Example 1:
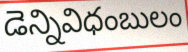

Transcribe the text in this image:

డెన్నివిధంబులం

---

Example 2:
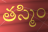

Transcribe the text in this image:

తస్మిం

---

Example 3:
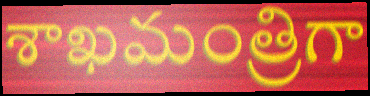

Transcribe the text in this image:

శాఖమంత్రిగా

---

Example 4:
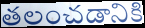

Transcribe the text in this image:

తలంచడానికి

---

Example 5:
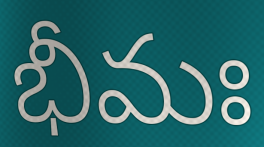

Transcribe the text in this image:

భీమః